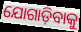
ଯୋଗାଡ଼ିବାକୁ